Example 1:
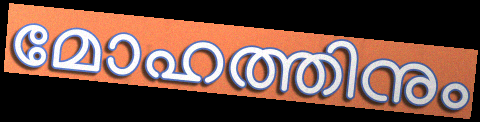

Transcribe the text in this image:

മോഹത്തിനും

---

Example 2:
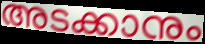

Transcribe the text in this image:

അടക്കാനും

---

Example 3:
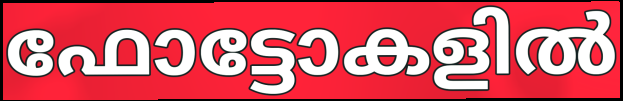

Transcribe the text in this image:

ഫോട്ടോകളിൽ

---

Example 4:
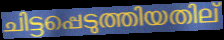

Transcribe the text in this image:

ചിട്ടപ്പെടുത്തിയതില്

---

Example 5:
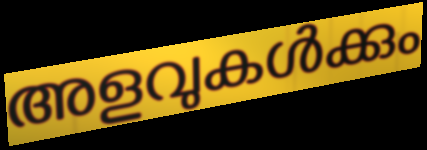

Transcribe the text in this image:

അളവുകൾക്കും